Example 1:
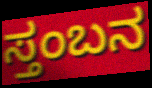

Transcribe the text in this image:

ಸ್ತಂಬನ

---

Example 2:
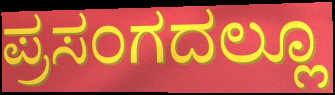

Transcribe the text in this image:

ಪ್ರಸಂಗದಲ್ಲೂ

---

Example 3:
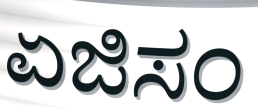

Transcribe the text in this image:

ಏಜಿಸಂ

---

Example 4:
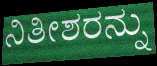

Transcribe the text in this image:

ನಿತೀಶರನ್ನು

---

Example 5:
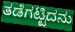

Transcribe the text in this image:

ತಡೆಗಟ್ಟಿದನು